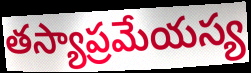
తస్యాప్రమేయస్య